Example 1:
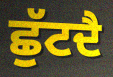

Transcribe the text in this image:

ਛੁੱਟਦੈ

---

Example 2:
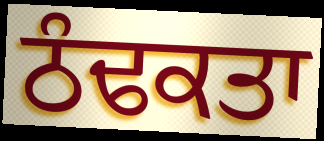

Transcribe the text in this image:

ਠੰਢਕਤਾ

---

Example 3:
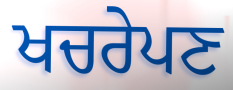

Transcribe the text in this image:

ਖਚਰੇਪਣ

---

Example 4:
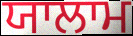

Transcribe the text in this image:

ਯਾਲਾਮ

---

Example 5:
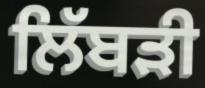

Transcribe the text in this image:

ਲਿੱਬੜੀ